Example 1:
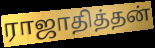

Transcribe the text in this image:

ராஜாதித்தன்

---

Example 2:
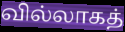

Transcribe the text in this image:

வில்லாகத்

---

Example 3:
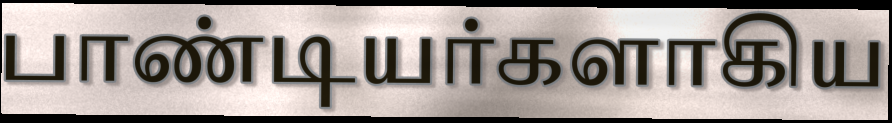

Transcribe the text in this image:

பாண்டியர்களாகிய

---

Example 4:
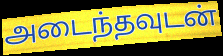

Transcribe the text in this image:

அடைந்தவுடன்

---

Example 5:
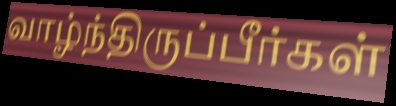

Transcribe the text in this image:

வாழ்ந்திருப்பீர்கள்